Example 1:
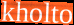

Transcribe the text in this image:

kholto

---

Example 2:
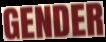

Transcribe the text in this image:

GENDER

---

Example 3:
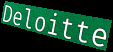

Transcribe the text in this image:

Deloitte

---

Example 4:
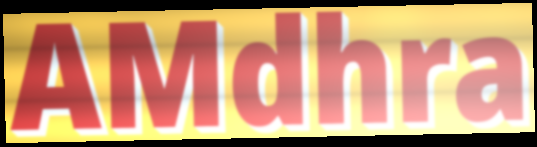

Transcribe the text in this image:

AMdhra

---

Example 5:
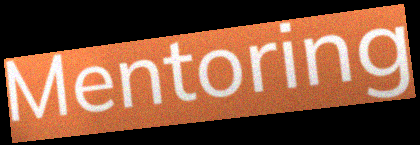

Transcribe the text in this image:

Mentoring